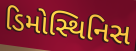
ડિમોસ્થિનિસ